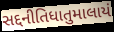
સદ્દનીતિધાતુમાલાયં